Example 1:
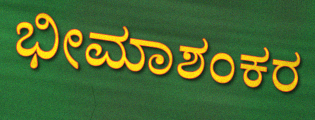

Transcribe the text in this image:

ಭೀಮಾಶಂಕರ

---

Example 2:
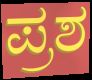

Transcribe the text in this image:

ಪ್ರಶ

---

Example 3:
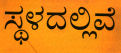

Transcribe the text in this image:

ಸ್ಥಳದಲ್ಲಿವೆ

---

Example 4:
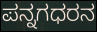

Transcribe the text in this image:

ಪನ್ನಗಧರನ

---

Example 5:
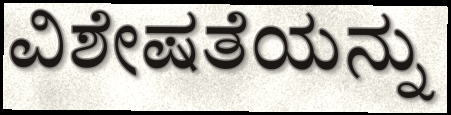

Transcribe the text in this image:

ವಿಶೇಷತೆಯನ್ನು